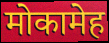
मोकामेह